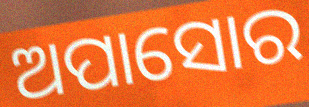
ଅପାସୋର